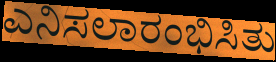
ಎನಿಸಲಾರಂಭಿಸಿತು